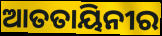
ଆତତାୟିନୀର